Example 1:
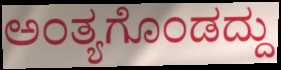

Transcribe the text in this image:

ಅಂತ್ಯಗೊಂಡದ್ದು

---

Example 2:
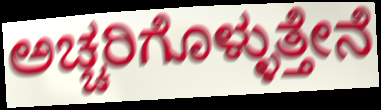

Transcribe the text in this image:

ಅಚ್ಚರಿಗೊಳ್ಳುತ್ತೇನೆ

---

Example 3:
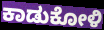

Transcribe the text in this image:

ಕಾಡುಕೋಳಿ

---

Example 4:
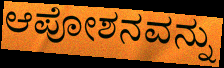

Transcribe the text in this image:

ಆಪೋಶನವನ್ನು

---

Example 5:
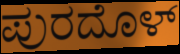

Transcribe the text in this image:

ಪುರದೊಳ್